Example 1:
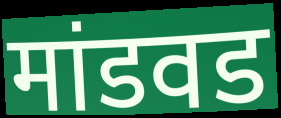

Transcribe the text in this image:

मांडवड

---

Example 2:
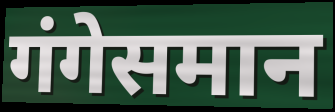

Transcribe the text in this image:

गंगेसमान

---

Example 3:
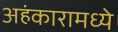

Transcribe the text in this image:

अहंकारामध्ये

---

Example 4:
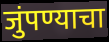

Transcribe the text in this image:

जुंपण्याचा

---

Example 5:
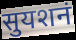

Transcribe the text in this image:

सुयशनं